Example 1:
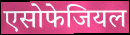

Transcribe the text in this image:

एसोफेजियल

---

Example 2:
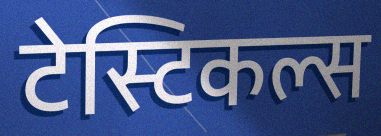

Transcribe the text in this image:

टेस्टिकल्स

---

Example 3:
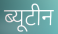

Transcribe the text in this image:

ब्यूटीन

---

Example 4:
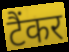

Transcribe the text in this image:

टैंकर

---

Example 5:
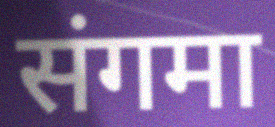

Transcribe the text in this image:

संगमा